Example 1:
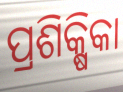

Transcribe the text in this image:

ପ୍ରଶିକ୍ଷିକା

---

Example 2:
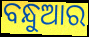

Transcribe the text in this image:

ବନ୍ଧୁଆର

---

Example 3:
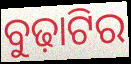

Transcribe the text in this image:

ବୁଢ଼ାଟିର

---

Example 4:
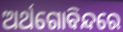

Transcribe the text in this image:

ଅର୍ଥଗୋବିନ୍ଦରେ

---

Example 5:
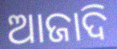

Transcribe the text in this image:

ଆଜାଦି